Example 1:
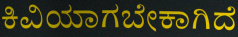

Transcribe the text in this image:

ಕಿವಿಯಾಗಬೇಕಾಗಿದೆ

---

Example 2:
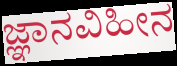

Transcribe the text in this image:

ಜ್ಞಾನವಿಹೀನ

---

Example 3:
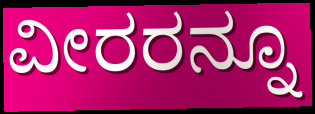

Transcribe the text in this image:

ವೀರರನ್ನೂ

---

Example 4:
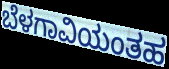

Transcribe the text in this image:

ಬೆಳಗಾವಿಯಂತಹ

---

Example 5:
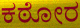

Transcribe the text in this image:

ಕಠೋರ